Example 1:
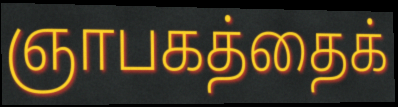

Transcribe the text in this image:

ஞாபகத்தைக்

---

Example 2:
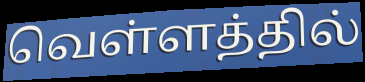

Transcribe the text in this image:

வெள்ளத்தில்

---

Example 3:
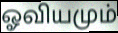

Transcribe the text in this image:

ஓவியமும்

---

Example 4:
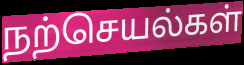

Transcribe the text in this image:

நற்செயல்கள்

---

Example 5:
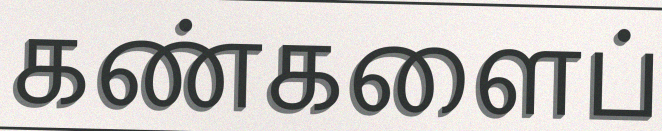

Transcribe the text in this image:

கண்களைப்